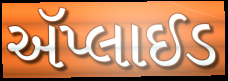
ઍપ્લાઈડ